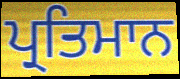
ਪ੍ਰਤਿਮਾਨ